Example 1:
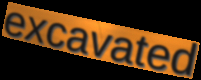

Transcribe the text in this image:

excavated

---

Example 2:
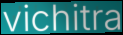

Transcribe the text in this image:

vichitra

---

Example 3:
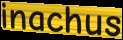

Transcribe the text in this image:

inachus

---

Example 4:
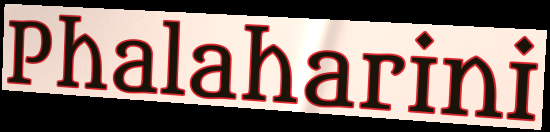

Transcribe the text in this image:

Phalaharini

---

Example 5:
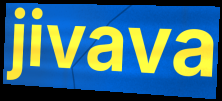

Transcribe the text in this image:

jivava